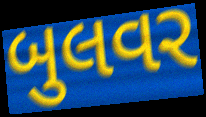
બુલવર